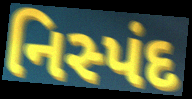
નિસ્પંદ